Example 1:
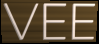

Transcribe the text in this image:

VEE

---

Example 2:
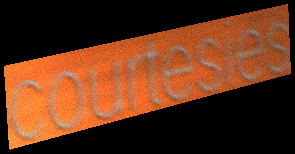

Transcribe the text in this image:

courtesies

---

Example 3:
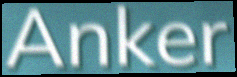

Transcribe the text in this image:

Anker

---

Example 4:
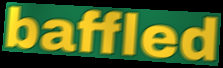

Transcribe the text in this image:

baffled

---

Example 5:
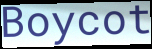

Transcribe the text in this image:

Boycot